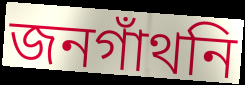
জনগাঁথনি